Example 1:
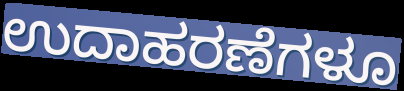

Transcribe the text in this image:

ಉದಾಹರಣೆಗಳೂ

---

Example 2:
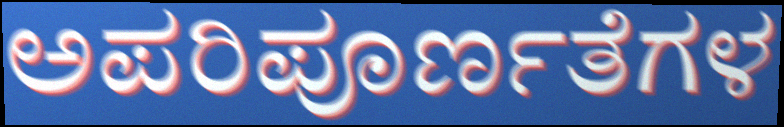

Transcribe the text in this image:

ಅಪರಿಪೂರ್ಣತೆಗಳ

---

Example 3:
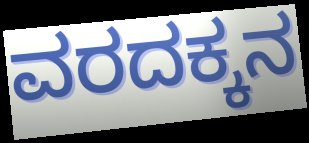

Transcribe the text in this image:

ವರದಕ್ಕನ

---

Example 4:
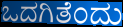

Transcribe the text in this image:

ಒದಗಿತೆಂದು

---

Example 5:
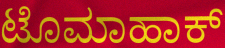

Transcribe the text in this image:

ಟೊಮಾಹಾಕ್